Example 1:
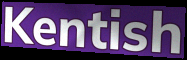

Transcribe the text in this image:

Kentish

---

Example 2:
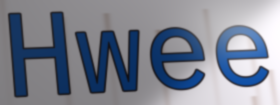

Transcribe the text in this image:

Hwee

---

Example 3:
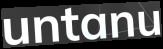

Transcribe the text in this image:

untanu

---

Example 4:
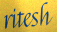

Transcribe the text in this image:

ritesh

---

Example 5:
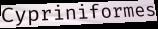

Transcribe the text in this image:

Cypriniformes